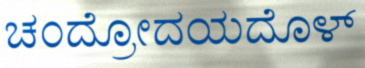
ಚಂದ್ರೋದಯದೊಳ್